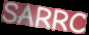
SARRC